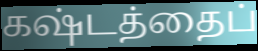
கஷ்டத்தைப்